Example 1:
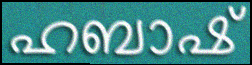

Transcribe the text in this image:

ഹബാഷ്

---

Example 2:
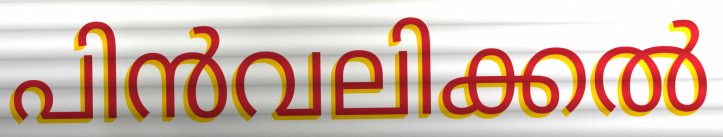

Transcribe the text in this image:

പിൻവലിക്കൽ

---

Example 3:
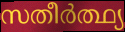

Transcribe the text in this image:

സതീർത്ഥ്യ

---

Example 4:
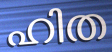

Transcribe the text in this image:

ഹിത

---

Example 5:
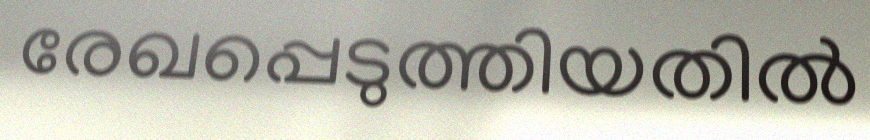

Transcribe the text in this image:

രേഖപ്പെടുത്തിയതിൽ